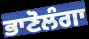
ਭਾਣੋਲੰਗਾ